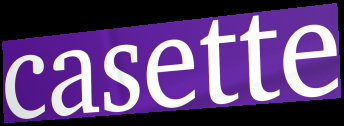
casette